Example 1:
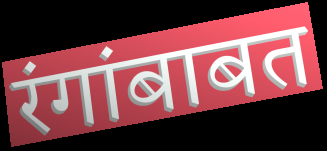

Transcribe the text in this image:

रंगांबाबत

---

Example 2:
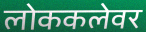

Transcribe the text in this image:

लोककलेवर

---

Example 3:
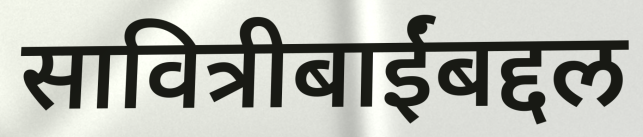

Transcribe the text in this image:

सावित्रीबाईंबद्दल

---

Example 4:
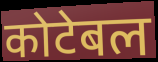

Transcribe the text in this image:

कोटेबल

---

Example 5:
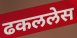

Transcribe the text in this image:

ढकललेस